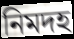
নিমদহ